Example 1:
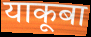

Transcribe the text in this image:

याकूबा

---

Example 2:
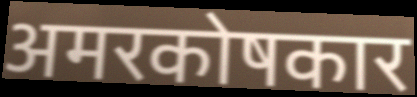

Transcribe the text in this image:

अमरकोषकार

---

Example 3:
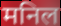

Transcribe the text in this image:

मनिल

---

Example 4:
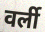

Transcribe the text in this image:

वर्ली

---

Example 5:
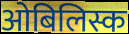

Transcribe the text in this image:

ओबिलिस्क